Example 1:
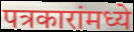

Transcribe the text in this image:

पत्रकारांमध्ये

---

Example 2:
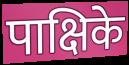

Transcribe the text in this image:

पाक्षिके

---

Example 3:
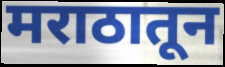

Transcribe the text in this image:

मराठातून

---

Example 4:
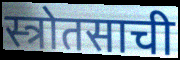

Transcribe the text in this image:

स्त्रोतसाची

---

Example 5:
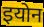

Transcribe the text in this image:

इयोन